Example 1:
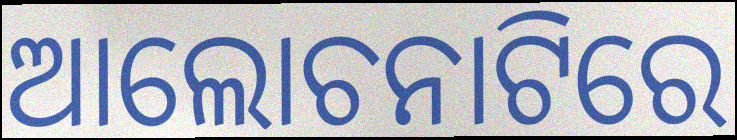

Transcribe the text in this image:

ଆଲୋଚନାଟିରେ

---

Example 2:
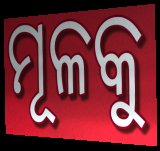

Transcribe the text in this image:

ମୂଳକୁ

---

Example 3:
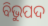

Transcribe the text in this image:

ବିଭୁପଦ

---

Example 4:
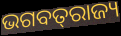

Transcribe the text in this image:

ଭଗବତ୍‌ରାଜ୍ୟ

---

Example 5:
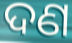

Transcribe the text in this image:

ଦଣ